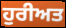
ਹੁਰੀਅਤ